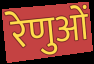
रेणुओं